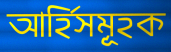
আৰ্হিসমূহক